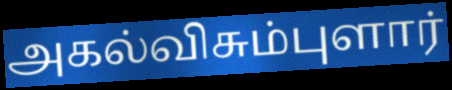
அகல்விசும்புளார்